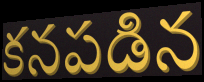
కనపడిన